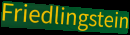
Friedlingstein